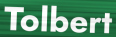
Tolbert